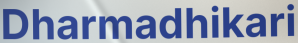
Dharmadhikari